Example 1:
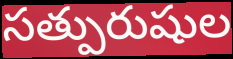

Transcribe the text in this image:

సత్పురుషుల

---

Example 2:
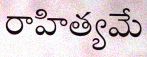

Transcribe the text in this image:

రాహిత్యమే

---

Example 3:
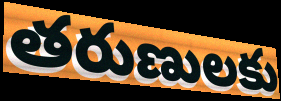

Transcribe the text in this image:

తరుణులకు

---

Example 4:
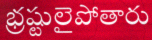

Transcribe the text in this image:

భ్రష్టులైపోతారు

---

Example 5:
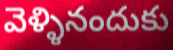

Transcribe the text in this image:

వెళ్ళినందుకు